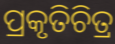
ପ୍ରକୃତିଚିତ୍ର